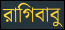
রাগিবাবু